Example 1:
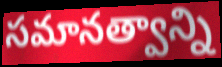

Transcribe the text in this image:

సమానత్వాన్ని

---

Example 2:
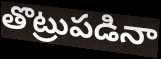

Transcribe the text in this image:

తొట్రుపడినా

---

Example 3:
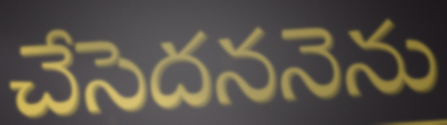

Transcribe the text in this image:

చేసెదననెను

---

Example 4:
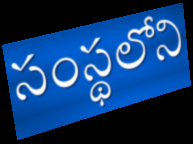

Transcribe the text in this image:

సంస్థలోని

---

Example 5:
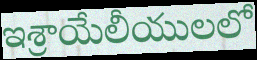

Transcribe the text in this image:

ఇశ్రాయేలీయులలో